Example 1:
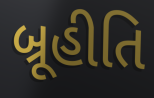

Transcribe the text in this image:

બ્રૂહીતિ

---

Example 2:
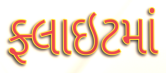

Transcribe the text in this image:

ફ્લાઇટમાં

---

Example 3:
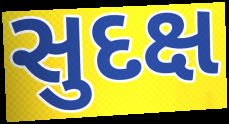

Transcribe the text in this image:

સુદક્ષ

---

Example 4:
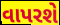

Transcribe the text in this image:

વાપરશે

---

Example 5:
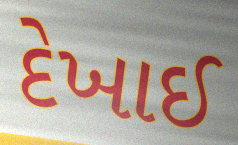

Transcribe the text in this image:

દેખાઈ